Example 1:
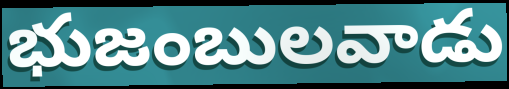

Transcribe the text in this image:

భుజంబులవాడు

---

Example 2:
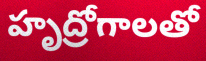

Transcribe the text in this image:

హృద్రోగాలతో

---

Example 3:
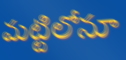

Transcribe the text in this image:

మట్టిలోనూ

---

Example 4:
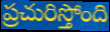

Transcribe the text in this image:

ప్రచురిస్తోంది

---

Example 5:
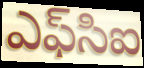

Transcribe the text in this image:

ఎఫ్‌సిఐ